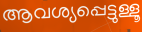
ആവശ്യപ്പെട്ടുള്ളൂ